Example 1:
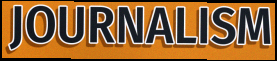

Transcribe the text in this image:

JOURNALISM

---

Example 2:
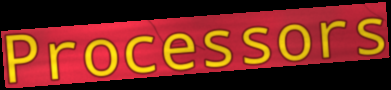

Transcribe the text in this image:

Processors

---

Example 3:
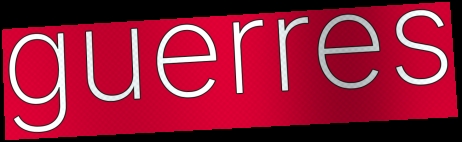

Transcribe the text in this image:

guerres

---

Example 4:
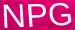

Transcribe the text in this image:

NPG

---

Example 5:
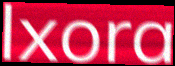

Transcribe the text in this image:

Ixora